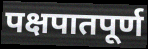
पक्षपातपूर्ण